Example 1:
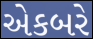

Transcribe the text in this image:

એકબરે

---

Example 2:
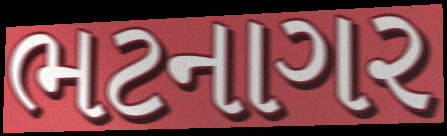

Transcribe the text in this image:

ભટનાગર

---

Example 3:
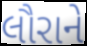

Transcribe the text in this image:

લૌરાને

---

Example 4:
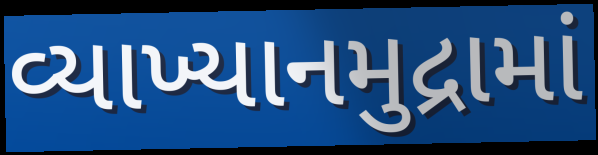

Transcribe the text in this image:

વ્યાખ્યાનમુદ્રામાં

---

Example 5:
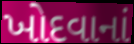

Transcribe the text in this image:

ખોદવાનાં